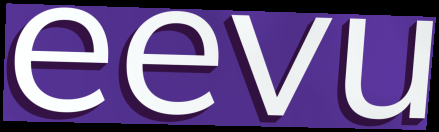
eevu